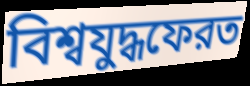
বিশ্বযুদ্ধফেরত